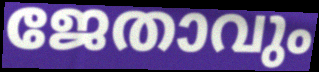
ജേതാവും